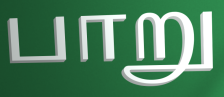
பாறு